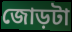
জোড়টা